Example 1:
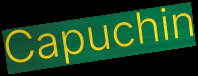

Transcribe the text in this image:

Capuchin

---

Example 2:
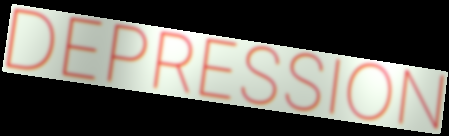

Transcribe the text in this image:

DEPRESSION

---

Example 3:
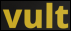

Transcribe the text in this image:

vult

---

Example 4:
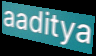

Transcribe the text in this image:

aaditya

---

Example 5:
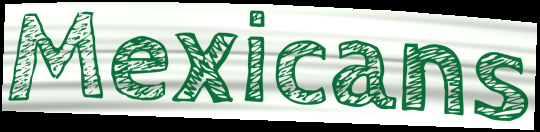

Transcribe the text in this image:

Mexicans